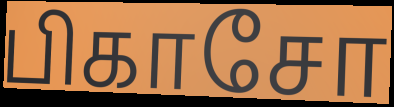
பிகாசோ